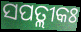
ସପତ୍ଲୀକଃ